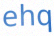
ehq